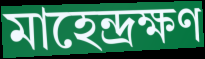
মাহেন্দ্রক্ষণ